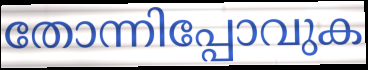
തോന്നിപ്പോവുക